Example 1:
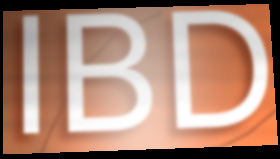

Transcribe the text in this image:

IBD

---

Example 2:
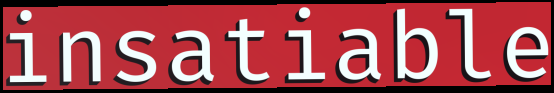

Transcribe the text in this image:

insatiable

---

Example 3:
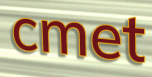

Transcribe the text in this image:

cmet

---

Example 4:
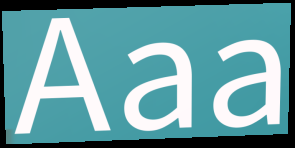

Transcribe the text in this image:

Aaa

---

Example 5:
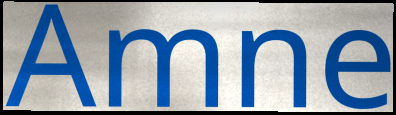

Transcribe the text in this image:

Amne